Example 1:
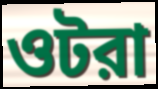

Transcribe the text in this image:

ওটরা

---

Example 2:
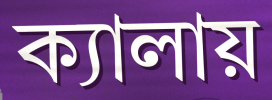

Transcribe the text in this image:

ক্যালায়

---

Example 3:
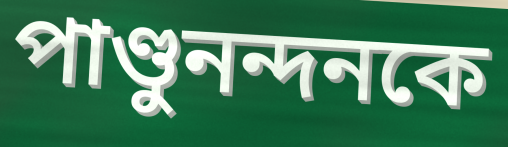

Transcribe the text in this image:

পাণ্ডুনন্দনকে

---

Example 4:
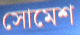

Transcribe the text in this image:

সোমেশ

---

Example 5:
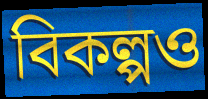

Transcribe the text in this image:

বিকল্পও